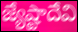
జ్యేష్టాదేవి